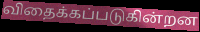
விதைக்கப்படுகின்றன